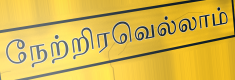
நேற்றிரவெல்லாம்